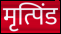
मृत्पिंड